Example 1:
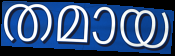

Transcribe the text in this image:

തമായ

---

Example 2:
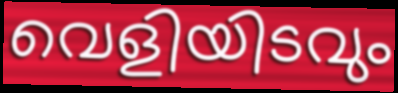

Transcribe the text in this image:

വെളിയിടവും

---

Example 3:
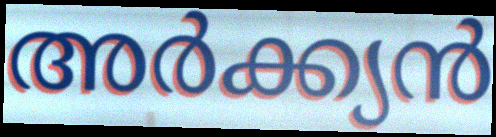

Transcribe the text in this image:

അർക്ക്യൻ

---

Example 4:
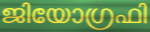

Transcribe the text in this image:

ജിയോഗ്രഫി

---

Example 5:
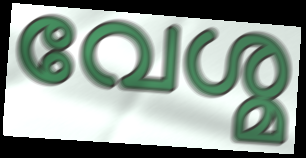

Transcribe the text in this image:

വേശ്മ